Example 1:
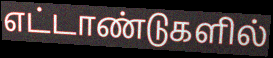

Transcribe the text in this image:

எட்டாண்டுகளில்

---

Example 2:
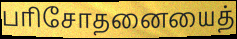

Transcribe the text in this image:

பரிசோதனையைத்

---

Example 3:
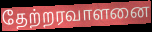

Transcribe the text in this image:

தேற்றரவாளனை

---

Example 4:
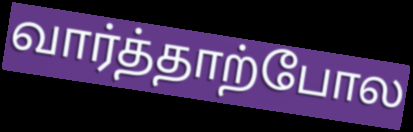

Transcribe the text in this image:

வார்த்தாற்போல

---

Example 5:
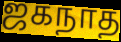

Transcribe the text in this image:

ஜகநாத